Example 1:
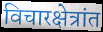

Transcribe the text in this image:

विचारक्षेत्रांत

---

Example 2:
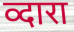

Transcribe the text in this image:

व्दारा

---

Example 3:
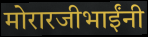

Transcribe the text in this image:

मोरारजीभाईंनी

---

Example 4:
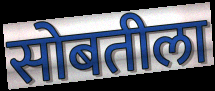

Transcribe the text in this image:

सोबतीला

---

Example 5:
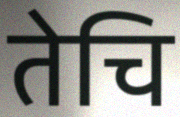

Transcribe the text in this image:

तेचि